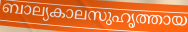
ബാല്യകാലസുഹൃത്തായ